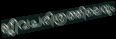
ജീവചരിത്രത്തിലെയും